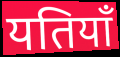
यतियाँ